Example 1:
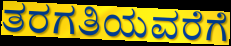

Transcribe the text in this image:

ತರಗತಿಯವರೆಗೆ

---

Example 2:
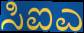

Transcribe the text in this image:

ಸಿಐಎ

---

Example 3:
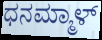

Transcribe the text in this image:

ಧನಮ್ಮಾಳ್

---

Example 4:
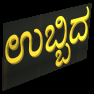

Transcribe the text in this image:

ಉಬ್ಬಿದ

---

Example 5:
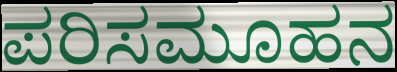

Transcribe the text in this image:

ಪರಿಸಮೂಹನ